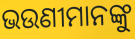
ଭଉଣୀମାନଙ୍କୁ